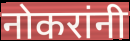
नोकरांनी